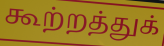
கூற்றத்துக்